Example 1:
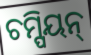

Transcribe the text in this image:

ଚମ୍ପିୟନ୍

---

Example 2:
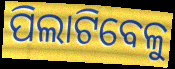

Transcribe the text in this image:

ପିଲାଟିବେଳୁ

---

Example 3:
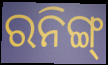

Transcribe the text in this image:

ରନିଙ୍ଗ୍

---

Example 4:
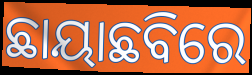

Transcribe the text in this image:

ଛାୟାଛବିରେ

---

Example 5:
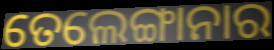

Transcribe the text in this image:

ତେଲେଙ୍ଗାନାର